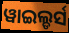
ୱାଇଲ୍ଡର୍ସ